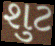
શુટ